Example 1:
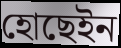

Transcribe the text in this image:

হোছেইন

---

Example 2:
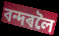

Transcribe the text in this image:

বন্দৰলৈ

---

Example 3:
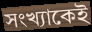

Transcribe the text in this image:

সংখ্যাকেই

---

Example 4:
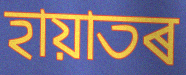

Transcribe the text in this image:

হায়াতৰ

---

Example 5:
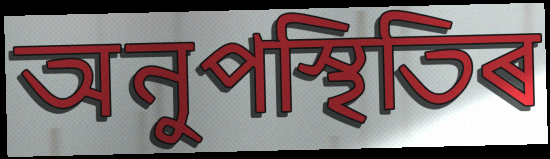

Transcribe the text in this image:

অনুপস্থিতিৰ